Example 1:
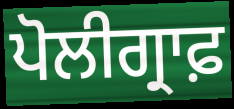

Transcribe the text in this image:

ਪੋਲੀਗ੍ਰਾਫ਼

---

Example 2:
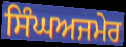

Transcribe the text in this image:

ਸਿੰਘਅਜਮੇਰ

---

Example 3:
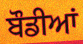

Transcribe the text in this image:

ਬੌਡੀਆਂ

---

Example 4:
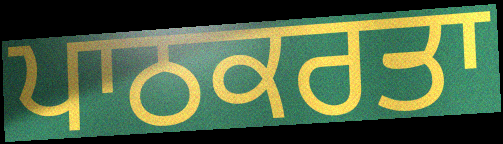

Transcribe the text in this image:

ਪਾਠਕਰਤਾ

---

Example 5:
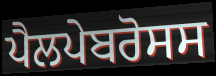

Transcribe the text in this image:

ਪੈਲਪੇਬਰੋਸਸ